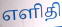
எளிதி